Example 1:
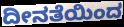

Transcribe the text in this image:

ದೀನತೆಯಿಂದ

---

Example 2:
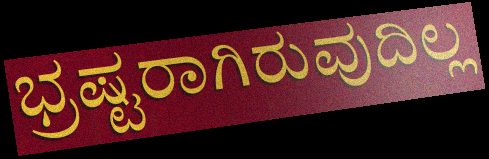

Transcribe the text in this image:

ಭ್ರಷ್ಟರಾಗಿರುವುದಿಲ್ಲ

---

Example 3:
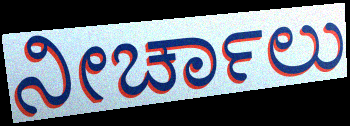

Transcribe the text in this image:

ನೀರ್ಚಾಲು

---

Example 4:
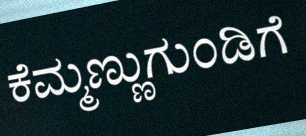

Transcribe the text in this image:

ಕೆಮ್ಮಣ್ಣುಗುಂಡಿಗೆ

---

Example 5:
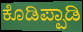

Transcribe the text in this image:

ಕೊಡಿಪ್ಪಾಡಿ